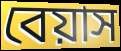
বেয়াস